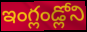
ఇంగ్లండ్లోని